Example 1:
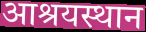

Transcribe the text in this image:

आश्रयस्थान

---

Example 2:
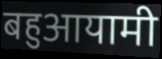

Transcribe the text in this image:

बहुआयामी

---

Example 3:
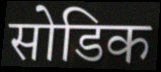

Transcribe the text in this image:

सोडिक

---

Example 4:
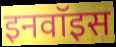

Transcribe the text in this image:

इनवॉइस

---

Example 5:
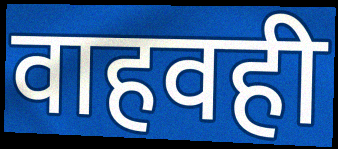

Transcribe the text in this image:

वाहवही